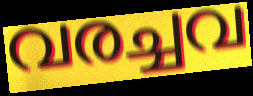
വരച്ചവ